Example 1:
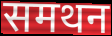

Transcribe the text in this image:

समथन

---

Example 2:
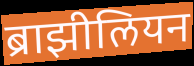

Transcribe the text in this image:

ब्राझीलियन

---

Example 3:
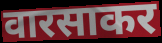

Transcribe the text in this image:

वारसाकर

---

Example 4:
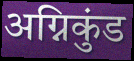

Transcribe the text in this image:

अग्निकुंड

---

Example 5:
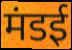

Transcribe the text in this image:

मंडई